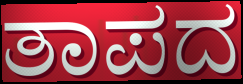
ತಾಪದ